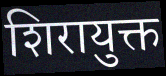
शिरायुक्त